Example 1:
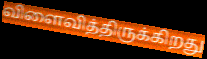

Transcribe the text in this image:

விளைவித்திருக்கிறது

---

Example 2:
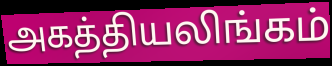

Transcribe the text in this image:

அகத்தியலிங்கம்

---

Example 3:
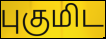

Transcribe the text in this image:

புகுமிட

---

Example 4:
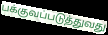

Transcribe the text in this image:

பக்குவப்படுத்துவது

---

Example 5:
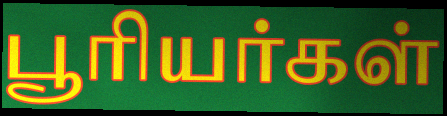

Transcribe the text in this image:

பூரியர்கள்